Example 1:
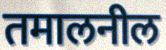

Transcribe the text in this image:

तमालनील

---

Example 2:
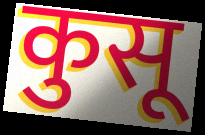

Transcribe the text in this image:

कुसू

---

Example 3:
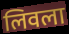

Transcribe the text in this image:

लिवला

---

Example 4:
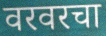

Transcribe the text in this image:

वरवरचा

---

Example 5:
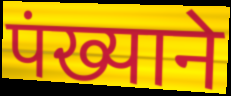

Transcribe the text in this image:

पंख्याने